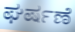
ಘರ್ಷಣೆ